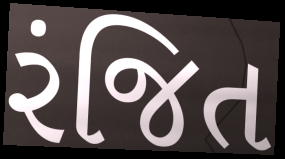
રંજિત